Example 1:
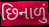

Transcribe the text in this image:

છિનાળું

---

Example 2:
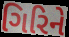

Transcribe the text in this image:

ગિરિને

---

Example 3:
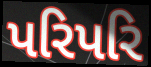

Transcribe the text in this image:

પરિપરિ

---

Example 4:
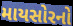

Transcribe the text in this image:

માયસોરનો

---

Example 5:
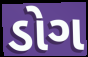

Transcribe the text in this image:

ડોગ